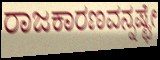
ರಾಜಕಾರಣವನ್ನಷ್ಟೇ